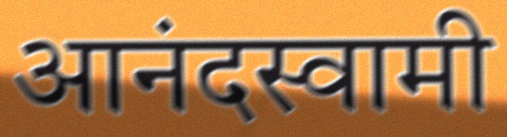
आनंदस्वामी